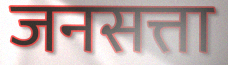
जनसत्ता